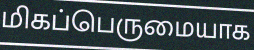
மிகப்பெருமையாக